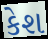
કેશ